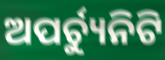
ଅପର୍ଚ୍ୟୁନିଟି